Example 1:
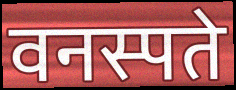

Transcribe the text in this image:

वनस्पते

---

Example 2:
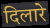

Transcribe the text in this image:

दिलारे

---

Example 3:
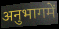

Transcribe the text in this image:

अनुभागमें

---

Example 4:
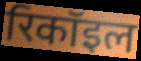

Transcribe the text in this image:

रिकॉइल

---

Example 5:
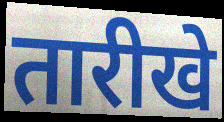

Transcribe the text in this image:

तारीखे